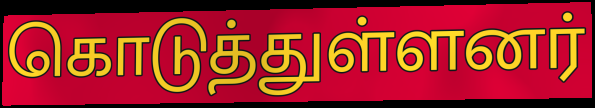
கொடுத்துள்ளனர்